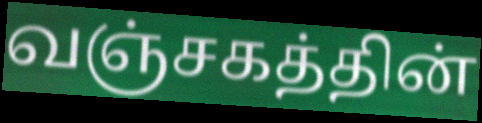
வஞ்சகத்தின்